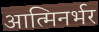
आत्मिनर्भर